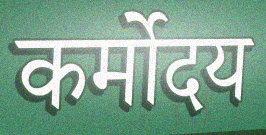
कर्मोदय